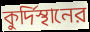
কুর্দিস্থানের